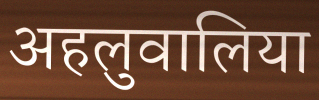
अहलुवालिया